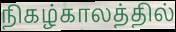
நிகழ்காலத்தில்